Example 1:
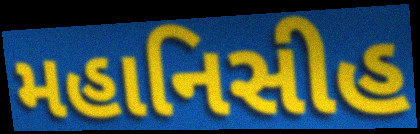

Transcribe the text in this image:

મહાનિસીહ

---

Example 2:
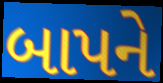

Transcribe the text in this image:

બાપને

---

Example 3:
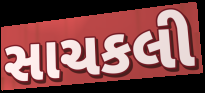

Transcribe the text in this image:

સાચકલી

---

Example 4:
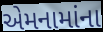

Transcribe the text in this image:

એમનામાંના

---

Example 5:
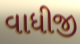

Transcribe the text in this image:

વાધીજી